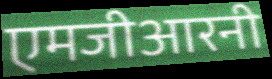
एमजीआरनी